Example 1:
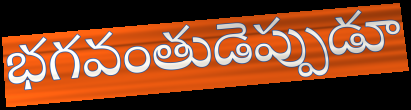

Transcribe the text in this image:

భగవంతుడెప్పుడూ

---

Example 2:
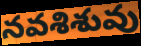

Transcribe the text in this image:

నవశిశువు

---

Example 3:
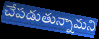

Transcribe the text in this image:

చేపడుతున్నామని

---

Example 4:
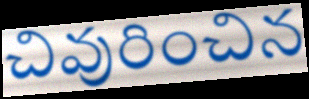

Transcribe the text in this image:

చివురించిన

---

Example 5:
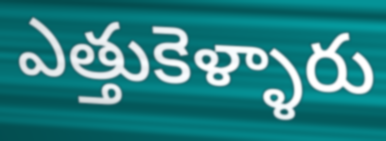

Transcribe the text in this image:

ఎత్తుకెళ్ళారు